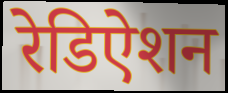
रेडिऐशन